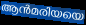
ആൻമരിയയെ